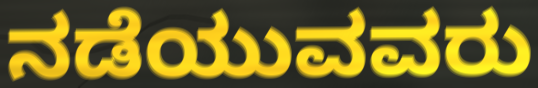
ನಡೆಯುವವರು